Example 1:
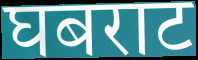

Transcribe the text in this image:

घबराट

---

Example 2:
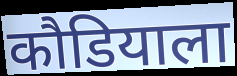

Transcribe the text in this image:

कौडियाला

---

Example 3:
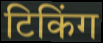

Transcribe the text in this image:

टिकिंग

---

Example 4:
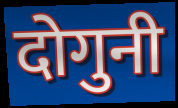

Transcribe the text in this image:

दोगुनी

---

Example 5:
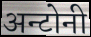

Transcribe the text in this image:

अन्टोनी